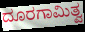
ದೂರಗಾಮಿತ್ವ